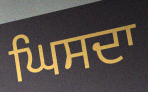
ਘਿਸਦਾ